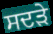
ਸਦੜੇ